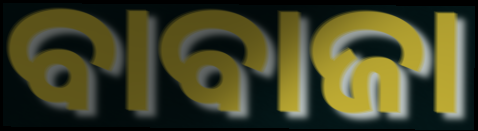
ବାବାଜା